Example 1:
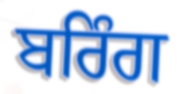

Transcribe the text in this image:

ਬਰਿੰਗ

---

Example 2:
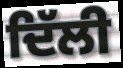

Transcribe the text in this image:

ਦਿੱਲੀ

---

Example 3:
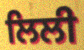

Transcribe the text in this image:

ਲਿਲੀ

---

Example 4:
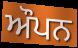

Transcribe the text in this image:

ਔਪਨ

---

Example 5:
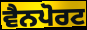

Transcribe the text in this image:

ਵੈਨਪੋਰਟ